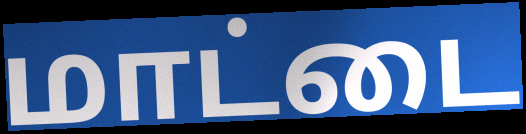
மாட்டை